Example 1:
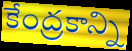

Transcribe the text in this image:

కేంద్రకాన్ని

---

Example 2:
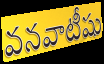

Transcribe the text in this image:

వనవాటీషు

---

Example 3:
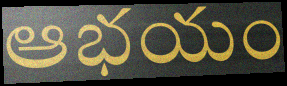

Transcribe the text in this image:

ఆభయం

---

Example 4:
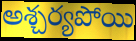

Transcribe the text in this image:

అశ్చర్యపోయి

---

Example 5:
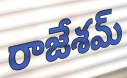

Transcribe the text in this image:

రాజేశమ్